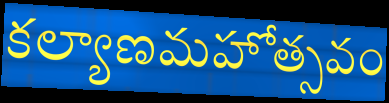
కల్యాణమహోత్సవం